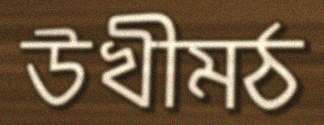
উখীমঠ